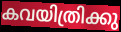
കവയിത്രിക്കു